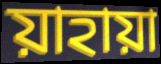
য়াহায়া